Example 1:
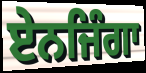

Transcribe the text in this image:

ਏਨਜਿੰਗਾ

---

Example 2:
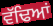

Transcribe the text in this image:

ਵੱਢਿਆਂ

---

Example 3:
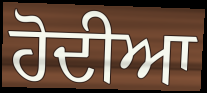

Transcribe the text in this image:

ਹੋਦੀਆ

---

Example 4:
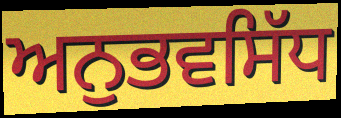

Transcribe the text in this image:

ਅਨੁਭਵਸਿੱਧ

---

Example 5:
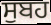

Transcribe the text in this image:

ਸੁਬਹ